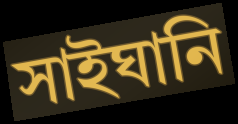
সাইঘানি